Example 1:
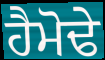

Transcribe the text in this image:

ਹੈਮੋਢੇ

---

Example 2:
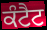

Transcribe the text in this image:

ਕੰਟੈਟ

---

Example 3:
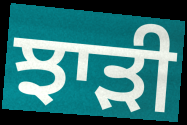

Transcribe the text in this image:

ਝਾੜੀ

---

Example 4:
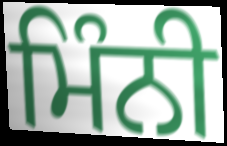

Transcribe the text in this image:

ਮਿੰਨੀ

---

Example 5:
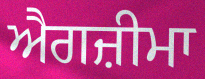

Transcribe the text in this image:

ਐਗਜ਼ੀਮਾ